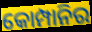
କୋମ୍ପାନିର